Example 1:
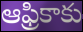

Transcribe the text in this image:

ఆఫ్రికాకు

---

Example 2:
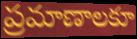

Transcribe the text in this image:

ప్రమాణాలకూ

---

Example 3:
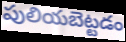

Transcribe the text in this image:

పులియబెట్టడం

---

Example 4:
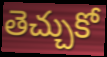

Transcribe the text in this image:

తెచ్చుకో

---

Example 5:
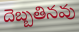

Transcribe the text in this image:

దెబ్బతినవు